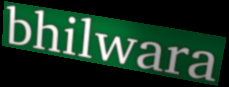
bhilwara